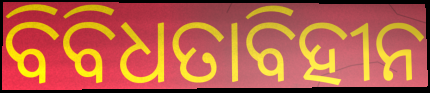
ବିବିଧତାବିହୀନ